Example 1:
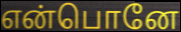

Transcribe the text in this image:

என்பொனே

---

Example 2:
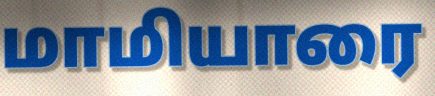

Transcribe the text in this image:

மாமியாரை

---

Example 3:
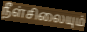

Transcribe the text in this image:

நீள்சிலையும்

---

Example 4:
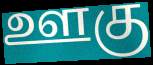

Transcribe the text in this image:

ஊகு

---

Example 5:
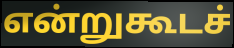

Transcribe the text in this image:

என்றுகூடச்